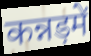
कन्नड़में